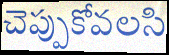
చెప్పుకోవలసి